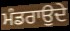
ਮੰਡਰਾਉਦੇ